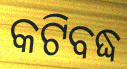
କଟିବଦ୍ଧ